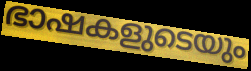
ഭാഷകളുടെയും